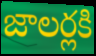
జాలర్లకి